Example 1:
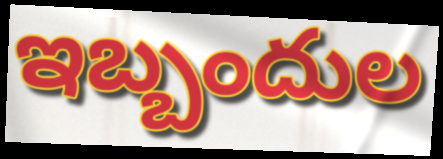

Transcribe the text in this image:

ఇబ్బందుల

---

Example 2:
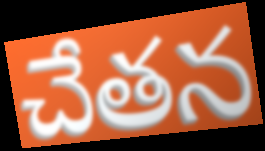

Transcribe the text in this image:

చేతన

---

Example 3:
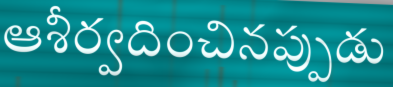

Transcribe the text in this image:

ఆశీర్వదించినప్పుడు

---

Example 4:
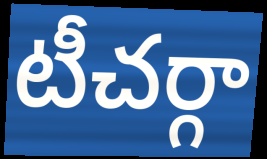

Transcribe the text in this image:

టీచర్గా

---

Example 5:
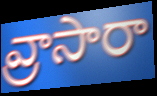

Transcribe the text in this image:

వ్రాసారా